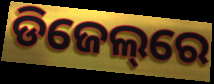
ଡିଜେଲ୍‌ରେ